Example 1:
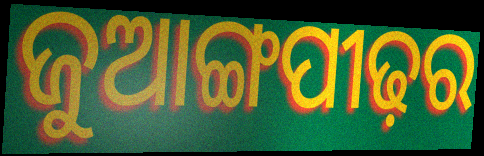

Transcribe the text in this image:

ଜୁଆଙ୍ଗପୀଢ଼ର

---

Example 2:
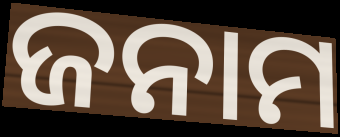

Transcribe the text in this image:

ଜନାମ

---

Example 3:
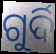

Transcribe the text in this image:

ଗୁର୍ଦି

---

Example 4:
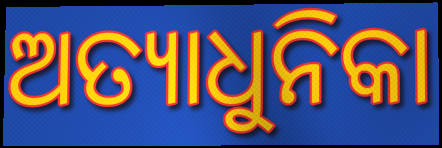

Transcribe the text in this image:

ଅତ୍ୟାଧୁନିକା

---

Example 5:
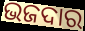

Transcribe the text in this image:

ଭଜଦାର